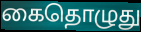
கைதொழுது